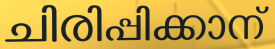
ചിരിപ്പിക്കാന്